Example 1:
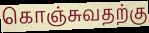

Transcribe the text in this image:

கொஞ்சுவதற்கு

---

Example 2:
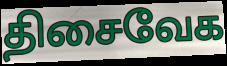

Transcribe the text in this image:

திசைவேக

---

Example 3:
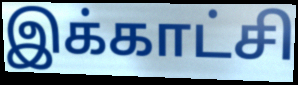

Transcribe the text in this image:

இக்காட்சி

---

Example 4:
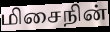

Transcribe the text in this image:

மிசைநின்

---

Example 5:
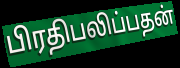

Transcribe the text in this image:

பிரதிபலிப்பதன்